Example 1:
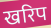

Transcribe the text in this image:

खरिप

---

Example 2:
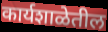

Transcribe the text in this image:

कार्यशाळेतील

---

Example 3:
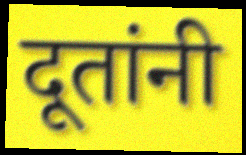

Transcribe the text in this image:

दूतांनी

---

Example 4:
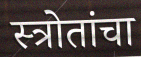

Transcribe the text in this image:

स्त्रोतांचा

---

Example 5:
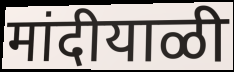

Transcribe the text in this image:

मांदीयाळी